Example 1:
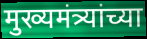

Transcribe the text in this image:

मुख्यमंत्र्यांच्या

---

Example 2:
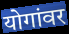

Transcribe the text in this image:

योगांवर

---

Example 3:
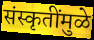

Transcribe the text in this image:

संस्कृतींमुळे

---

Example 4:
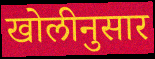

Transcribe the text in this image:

खोलीनुसार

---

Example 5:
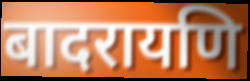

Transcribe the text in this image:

बादरायणि